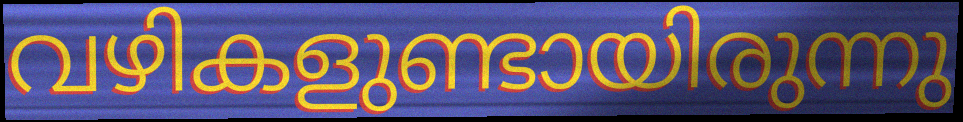
വഴികളുണ്ടായിരുന്നു